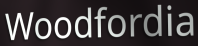
Woodfordia